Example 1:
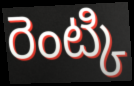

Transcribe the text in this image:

రెంట్కి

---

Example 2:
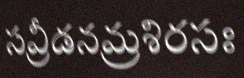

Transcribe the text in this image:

సవ్రీడనమ్రశిరసః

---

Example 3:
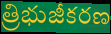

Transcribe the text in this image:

త్రిభుజీకరణ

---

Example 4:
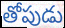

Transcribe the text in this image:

తోపుడు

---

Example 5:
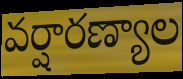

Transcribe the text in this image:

వర్షారణ్యాల